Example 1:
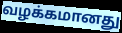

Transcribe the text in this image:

வழக்கமானது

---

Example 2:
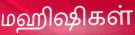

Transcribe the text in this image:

மஹிஷிகள்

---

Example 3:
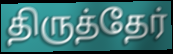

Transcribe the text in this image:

திருத்தேர்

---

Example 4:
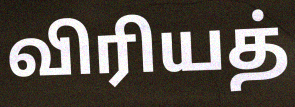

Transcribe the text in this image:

விரியத்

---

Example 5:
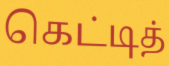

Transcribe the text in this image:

கெட்டித்